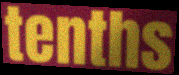
tenths